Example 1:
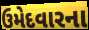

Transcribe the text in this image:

ઉમેદવારના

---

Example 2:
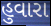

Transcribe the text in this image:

હુવારા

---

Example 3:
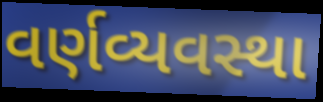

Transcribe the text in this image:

વર્ણવ્યવસ્થા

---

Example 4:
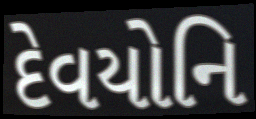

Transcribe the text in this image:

દેવયોનિ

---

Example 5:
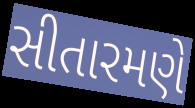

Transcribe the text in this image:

સીતારમણે